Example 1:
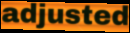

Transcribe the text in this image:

adjusted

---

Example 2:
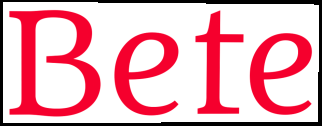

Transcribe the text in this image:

Bete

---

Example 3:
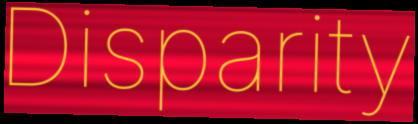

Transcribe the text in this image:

Disparity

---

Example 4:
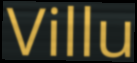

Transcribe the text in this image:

Villu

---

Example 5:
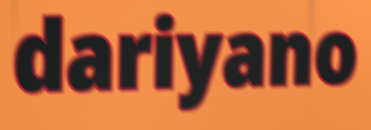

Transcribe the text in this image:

dariyano